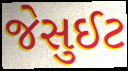
જેસુઈટ